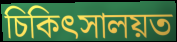
চিকিৎসালয়ত